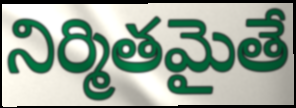
నిర్మితమైతే